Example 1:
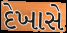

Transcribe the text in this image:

દેખાસે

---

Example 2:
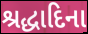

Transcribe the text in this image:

શ્રદ્ધાદિના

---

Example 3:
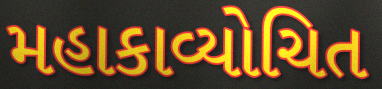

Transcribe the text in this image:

મહાકાવ્યોચિત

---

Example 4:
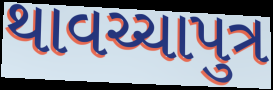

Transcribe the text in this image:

થાવચ્ચાપુત્ર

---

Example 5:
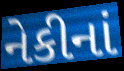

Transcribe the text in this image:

નેકીનાં